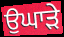
ਉਘਾੜੇ